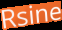
Rsine